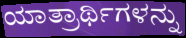
ಯಾತ್ರಾರ್ಥಿಗಳನ್ನು